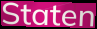
Staten